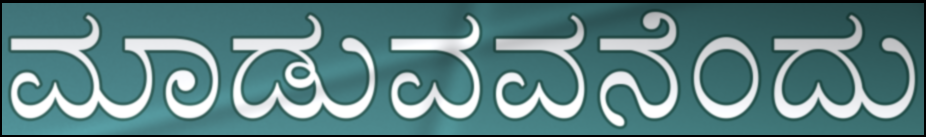
ಮಾಡುವವನೆಂದು